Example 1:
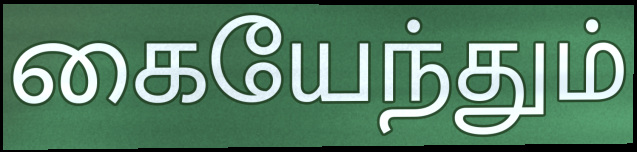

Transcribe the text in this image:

கையேந்தும்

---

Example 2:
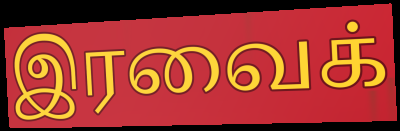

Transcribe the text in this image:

இரவைக்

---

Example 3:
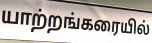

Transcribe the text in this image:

யாற்றங்கரையில்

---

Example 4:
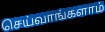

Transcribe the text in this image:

செய்வாங்களாம்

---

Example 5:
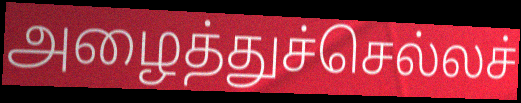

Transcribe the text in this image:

அழைத்துச்செல்லச்